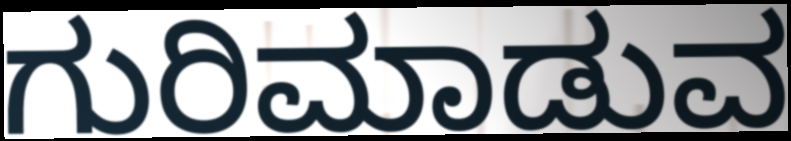
ಗುರಿಮಾಡುವ